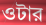
ওটার